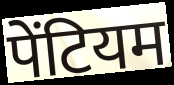
पेंटियम